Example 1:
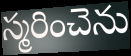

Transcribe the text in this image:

స్మరించెను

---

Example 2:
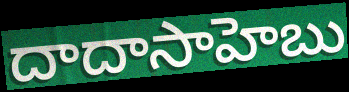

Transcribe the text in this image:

దాదాసాహెబు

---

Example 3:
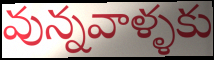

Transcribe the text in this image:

వున్నవాళ్ళకు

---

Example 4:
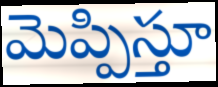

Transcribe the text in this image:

మెప్పిస్తూ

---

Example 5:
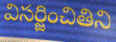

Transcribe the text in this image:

విసర్జించితిని